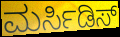
ಮರ್ಸಿಡಿಸ್